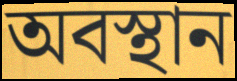
অবস্থান